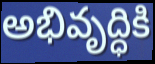
అభివృద్ధికి